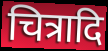
चित्रादि